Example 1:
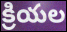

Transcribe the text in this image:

క్రియల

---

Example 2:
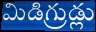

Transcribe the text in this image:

మిడిగ్రుడ్లు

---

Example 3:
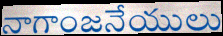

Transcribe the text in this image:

నాగాంజనేయులు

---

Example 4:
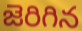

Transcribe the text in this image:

జెరిగిన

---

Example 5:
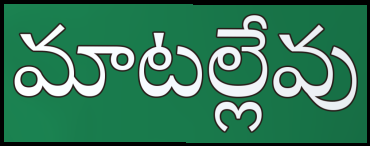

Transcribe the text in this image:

మాటల్లేవు